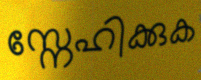
സ്നേഹിക്കുക